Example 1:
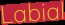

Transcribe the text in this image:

Labial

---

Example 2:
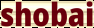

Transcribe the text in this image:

shobai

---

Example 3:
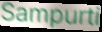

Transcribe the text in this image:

Sampurti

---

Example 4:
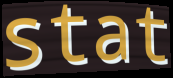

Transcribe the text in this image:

stat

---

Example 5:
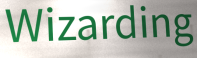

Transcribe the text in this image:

Wizarding